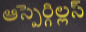
ఆస్పెర్గిల్లస్